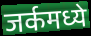
जर्कमध्ये